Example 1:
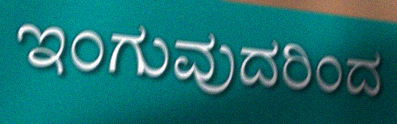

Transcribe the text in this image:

ಇಂಗುವುದರಿಂದ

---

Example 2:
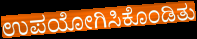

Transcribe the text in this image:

ಉಪಯೋಗಿಸಿಕೊಂಡಿತು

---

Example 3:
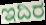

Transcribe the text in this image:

ಇದಿರ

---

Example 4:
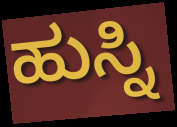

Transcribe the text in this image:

ಹುಸ್ನಿ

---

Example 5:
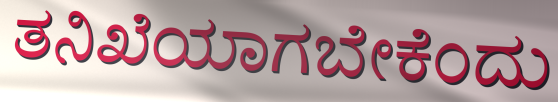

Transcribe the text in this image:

ತನಿಖೆಯಾಗಬೇಕೆಂದು